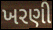
ખરણી